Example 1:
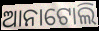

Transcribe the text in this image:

ଆନାଟୋଲି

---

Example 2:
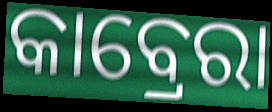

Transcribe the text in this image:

କାବ୍ରେରା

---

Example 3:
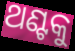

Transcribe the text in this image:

ଥଣ୍ଟକୁ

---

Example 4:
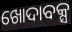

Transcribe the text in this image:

ଖୋଦାବକ୍ସ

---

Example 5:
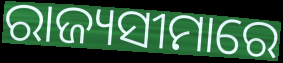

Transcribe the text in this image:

ରାଜ୍ୟସୀମାରେ